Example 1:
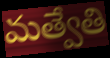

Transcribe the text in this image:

మత్వేతి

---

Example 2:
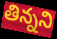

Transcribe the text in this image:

తిన్నని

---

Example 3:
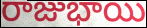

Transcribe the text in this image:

రాజుభాయి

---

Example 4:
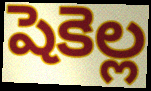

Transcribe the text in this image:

షెకెల్ల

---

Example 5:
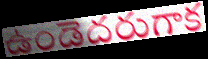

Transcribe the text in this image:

ఉండెదరుగాక